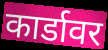
कार्डावर